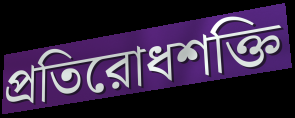
প্রতিরোধশক্তি